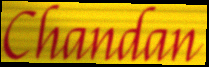
Chandan